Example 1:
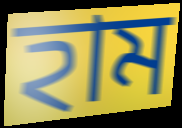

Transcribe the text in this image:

হাম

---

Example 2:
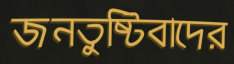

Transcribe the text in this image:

জনতুষ্টিবাদের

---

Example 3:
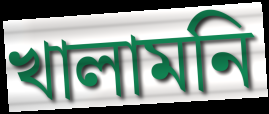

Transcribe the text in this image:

খালামনি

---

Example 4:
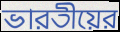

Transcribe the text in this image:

ভারতীয়ের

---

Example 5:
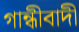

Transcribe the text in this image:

গান্ধীবাদী